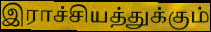
இராச்சியத்துக்கும்